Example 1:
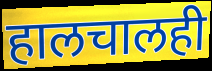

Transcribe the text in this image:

हालचालही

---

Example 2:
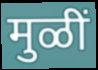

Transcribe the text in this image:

मुळीं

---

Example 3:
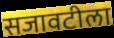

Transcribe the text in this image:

सजावटीला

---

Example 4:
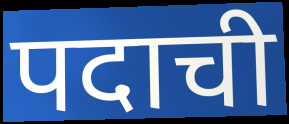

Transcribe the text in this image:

पदाची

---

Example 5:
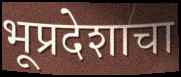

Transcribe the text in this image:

भूप्रदेशाचा